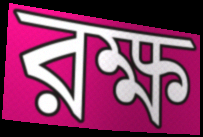
রক্ষ